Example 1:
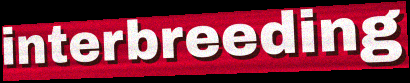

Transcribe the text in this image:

interbreeding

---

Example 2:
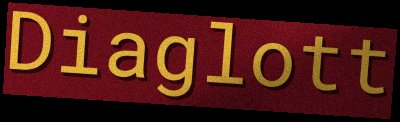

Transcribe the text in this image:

Diaglott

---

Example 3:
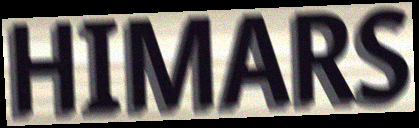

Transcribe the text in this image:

HIMARS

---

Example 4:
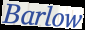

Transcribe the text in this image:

Barlow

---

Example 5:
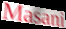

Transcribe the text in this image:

Masani